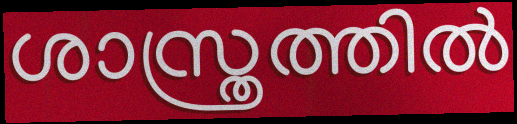
ശാസ്ത്രത്തിൽ